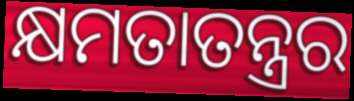
କ୍ଷମତାତନ୍ତ୍ରର